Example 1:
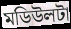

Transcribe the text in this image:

মডিউলটা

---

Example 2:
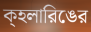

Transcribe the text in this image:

ক্হলারিঙের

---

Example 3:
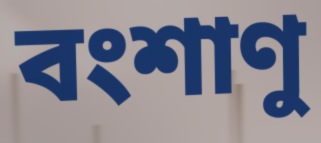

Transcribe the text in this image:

বংশাণু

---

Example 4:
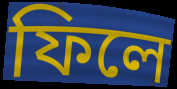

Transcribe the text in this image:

ফিলে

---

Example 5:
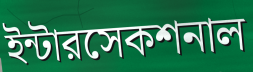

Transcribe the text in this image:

ইন্টারসেকশনাল